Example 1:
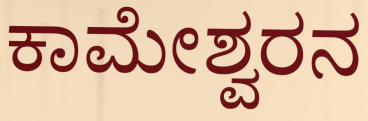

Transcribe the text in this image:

ಕಾಮೇಶ್ವರನ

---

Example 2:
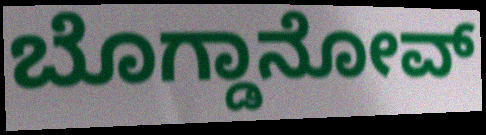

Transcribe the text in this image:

ಬೊಗ್ಡಾನೋವ್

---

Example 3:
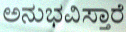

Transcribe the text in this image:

ಅನುಭವಿಸ್ತಾರೆ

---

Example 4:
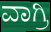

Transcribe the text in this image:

ವಾಗ್ರಿ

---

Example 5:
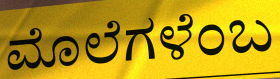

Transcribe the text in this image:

ಮೊಲೆಗಳೆಂಬ